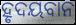
ହୃଦୟବାନ